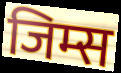
जिम्स